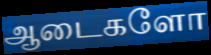
ஆடைகளோ